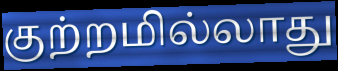
குற்றமில்லாது